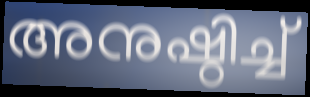
അനുഷ്ഠിച്ച്